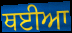
ਥਈਆ